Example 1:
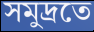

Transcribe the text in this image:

সমুদ্ৰতে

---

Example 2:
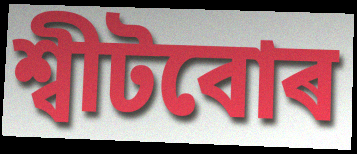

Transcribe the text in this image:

শ্বীটবোৰ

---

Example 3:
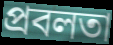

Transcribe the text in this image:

প্ৰবলতা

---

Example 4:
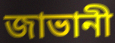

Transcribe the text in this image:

জাভানী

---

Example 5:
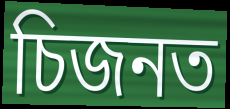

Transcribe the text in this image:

চিজনত